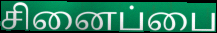
சினைப்பை